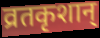
व्रतकृशान्